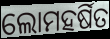
ଲୋମହର୍ଷିତ